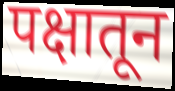
पक्षातून